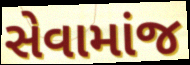
સેવામાંજ